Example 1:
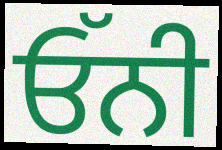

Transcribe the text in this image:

ਓੱਨੀ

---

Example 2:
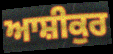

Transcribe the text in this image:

ਆਸ਼ੀਕੁਰ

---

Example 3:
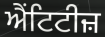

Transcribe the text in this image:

ਐਂਟਿਟੀਜ਼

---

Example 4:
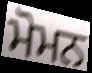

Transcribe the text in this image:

ਮੋਮਨ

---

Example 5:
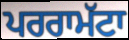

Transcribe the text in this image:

ਪਰਰਾਮੱਟਾ